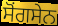
ਸੋਂਗਸੇਨ